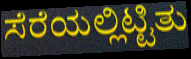
ಸೆರೆಯಲ್ಲಿಟ್ಟಿತು